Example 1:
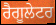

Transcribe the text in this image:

ਰੈਗੂਲੇਟਰ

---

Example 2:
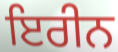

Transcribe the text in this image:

ਇਰੀਨ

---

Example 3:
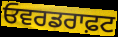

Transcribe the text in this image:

ਓਵਰਡਰਾਫ਼ਟ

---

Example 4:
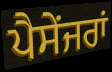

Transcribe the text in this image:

ਪੈਸੇਂਜਰਾਂ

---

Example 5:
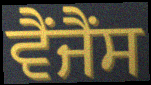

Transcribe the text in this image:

ਵੈਂਜੈਂਸ